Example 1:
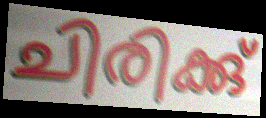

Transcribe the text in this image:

ചിരിക്കു്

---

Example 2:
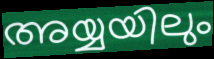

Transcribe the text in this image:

അയ്യയിലും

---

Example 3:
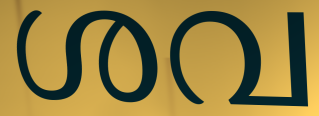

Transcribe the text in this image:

ശവ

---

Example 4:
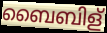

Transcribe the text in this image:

ബൈബിള്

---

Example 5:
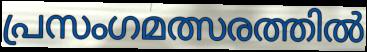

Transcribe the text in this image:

പ്രസംഗമത്സരത്തിൽ